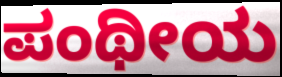
ಪಂಥೀಯ